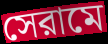
সেরামে